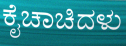
ಕೈಚಾಚಿದಳು